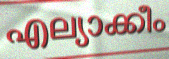
എല്യാക്കീം